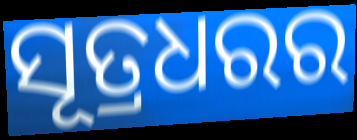
ସୂତ୍ରଧରର